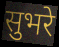
सुभरे